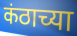
कंठाच्या